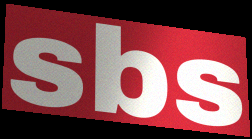
sbs